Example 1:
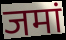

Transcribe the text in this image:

जमां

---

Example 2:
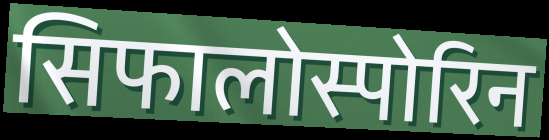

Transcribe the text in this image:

सिफालोस्पोरिन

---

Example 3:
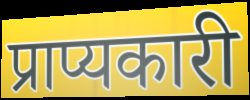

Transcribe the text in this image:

प्राप्यकारी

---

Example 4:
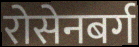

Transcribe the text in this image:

रोसेनबर्ग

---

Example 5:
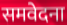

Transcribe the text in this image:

समवेदना